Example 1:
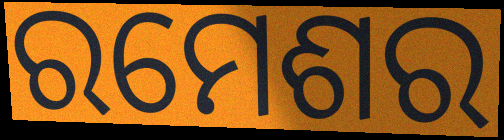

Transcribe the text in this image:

ରମେଶର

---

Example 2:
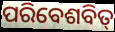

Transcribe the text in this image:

ପରିବେଶବିତ୍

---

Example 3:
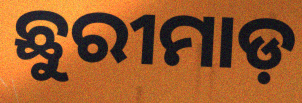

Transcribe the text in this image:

ଛୁରୀମାଡ଼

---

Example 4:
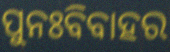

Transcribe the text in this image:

ପୁନଃବିବାହର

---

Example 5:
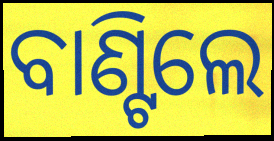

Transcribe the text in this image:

ବାଣ୍ଟିଲେ